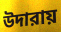
উদারায়